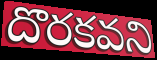
దొరకవని